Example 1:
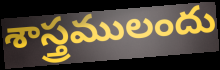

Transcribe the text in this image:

శాస్త్రములందు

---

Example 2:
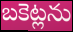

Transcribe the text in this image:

బకెట్లను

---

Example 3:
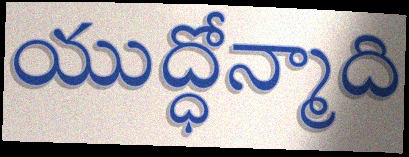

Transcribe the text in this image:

యుద్ధోన్మాది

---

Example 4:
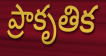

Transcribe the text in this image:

ప్రాకృతిక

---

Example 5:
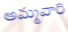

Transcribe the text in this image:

అమ్మవారి